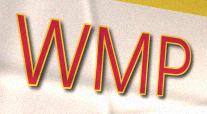
WMP